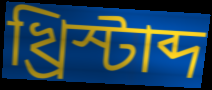
খ্রিস্টাব্দ